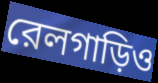
রেলগাড়িও